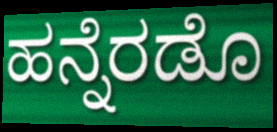
ಹನ್ನೆರಡೊ